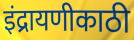
इंद्रायणीकाठी